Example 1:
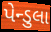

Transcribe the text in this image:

પેન્ડુલા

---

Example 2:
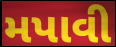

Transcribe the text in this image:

મપાવી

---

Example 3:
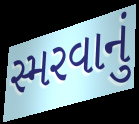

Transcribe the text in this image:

સ્મરવાનું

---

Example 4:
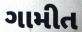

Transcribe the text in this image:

ગામીત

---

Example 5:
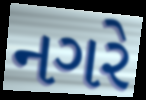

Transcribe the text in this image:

નગરે